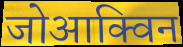
जोआक्विन